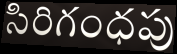
సిరిగంధపు